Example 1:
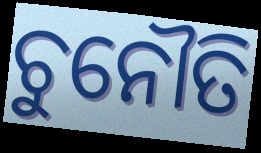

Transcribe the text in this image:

ଚୁନୌତି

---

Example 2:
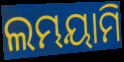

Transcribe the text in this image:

ଲମ୍ଭୟାମି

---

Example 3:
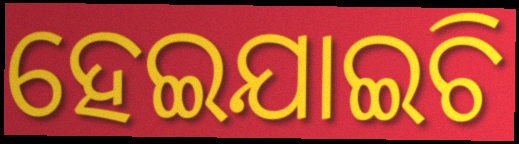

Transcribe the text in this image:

ହେଇଯାଇଚି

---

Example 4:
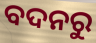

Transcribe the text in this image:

ବଦନରୁ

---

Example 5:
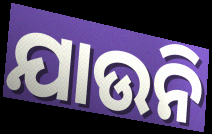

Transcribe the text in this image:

ଯାଉନି